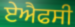
ਏਐਫਸੀ